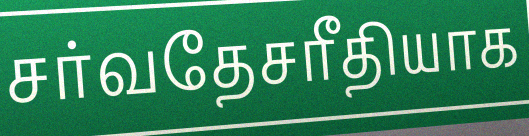
சர்வதேசரீதியாக